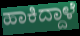
ಹಾಕಿದ್ದಾಳೆ